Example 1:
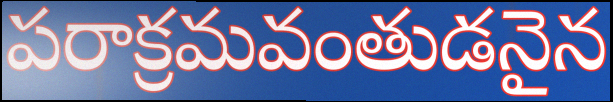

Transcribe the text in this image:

పరాక్రమవంతుడనైన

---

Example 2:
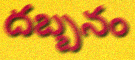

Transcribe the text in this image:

దబ్బనం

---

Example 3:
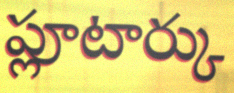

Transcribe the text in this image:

ప్లూటార్కు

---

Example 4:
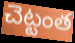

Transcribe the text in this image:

చెట్టంత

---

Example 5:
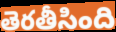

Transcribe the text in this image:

తెరతీసింది